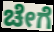
ಚೇಗೆ